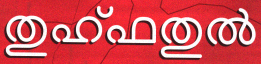
തുഹ്ഫതുൽ